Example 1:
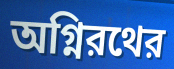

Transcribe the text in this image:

অগ্নিরথের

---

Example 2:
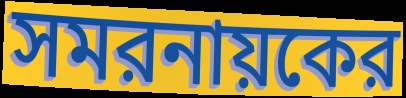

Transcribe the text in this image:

সমরনায়কের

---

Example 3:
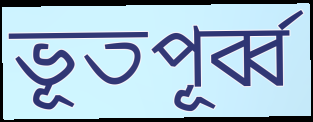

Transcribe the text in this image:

ভূতপূর্ব্ব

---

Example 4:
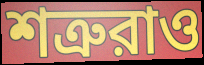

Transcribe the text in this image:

শত্রুরাও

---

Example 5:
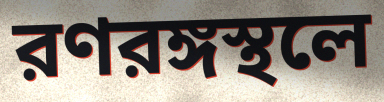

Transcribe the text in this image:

রণরঙ্গস্থলে